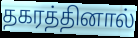
தகரத்தினால்